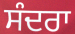
ਸੰਦਰਾ